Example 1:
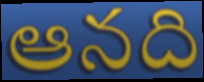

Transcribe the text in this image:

ఆనది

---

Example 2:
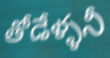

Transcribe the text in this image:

తోడేళ్ళనీ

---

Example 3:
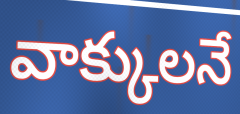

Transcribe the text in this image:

వాక్కులనే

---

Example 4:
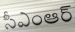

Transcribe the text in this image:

సీఎంఆర్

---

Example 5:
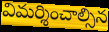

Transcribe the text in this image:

విమర్శించాల్సిన